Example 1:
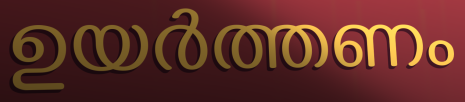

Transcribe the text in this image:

ഉയർത്തണം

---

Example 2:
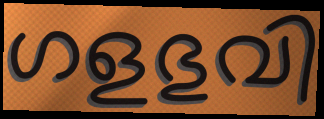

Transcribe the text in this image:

ഗളഭുവി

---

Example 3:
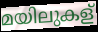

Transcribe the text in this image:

മയിലുകള്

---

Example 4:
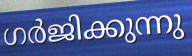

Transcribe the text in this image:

ഗർജിക്കുന്നു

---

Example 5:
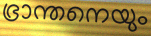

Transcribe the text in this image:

ഭ്രാന്തനെയും